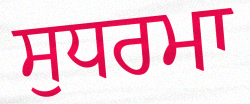
ਸੁਧਰਮਾ